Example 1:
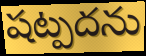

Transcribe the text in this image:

షట్పదను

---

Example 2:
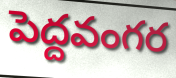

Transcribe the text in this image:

పెద్దవంగర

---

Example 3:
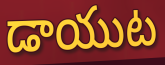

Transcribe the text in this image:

డాయుట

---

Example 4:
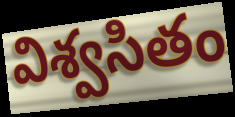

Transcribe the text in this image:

విశ్వసితం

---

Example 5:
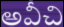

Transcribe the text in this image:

అవీచి